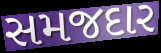
સમજદાર